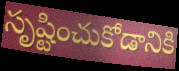
సృష్టించుకోడానికి